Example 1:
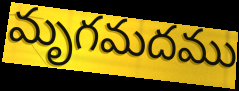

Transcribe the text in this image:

మృగమదము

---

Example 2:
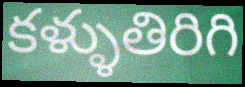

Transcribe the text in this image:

కళ్ళుతిరిగి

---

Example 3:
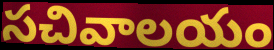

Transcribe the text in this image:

సచివాలయం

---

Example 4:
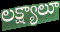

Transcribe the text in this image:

లక్ష్యాలూ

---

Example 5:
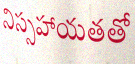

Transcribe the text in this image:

నిస్సహాయతతో